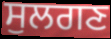
ਸੁਲਗਣ